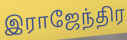
இராஜேந்திர